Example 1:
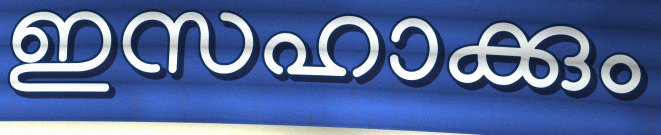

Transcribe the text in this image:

ഇസഹാക്കും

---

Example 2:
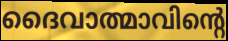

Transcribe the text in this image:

ദൈവാത്മാവിന്റെ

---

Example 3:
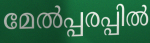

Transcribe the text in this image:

മേൽപ്പരപ്പിൽ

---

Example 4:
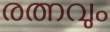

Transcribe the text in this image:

രത്നവും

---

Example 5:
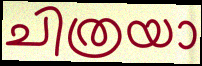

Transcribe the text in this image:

ചിത്രയാ